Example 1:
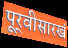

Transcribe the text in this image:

पूर्वीसारखं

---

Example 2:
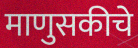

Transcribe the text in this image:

माणुसकीचे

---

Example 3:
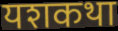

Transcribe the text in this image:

यशकथा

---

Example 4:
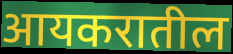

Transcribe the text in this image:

आयकरातील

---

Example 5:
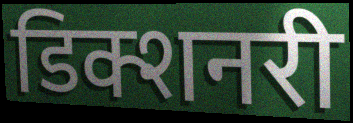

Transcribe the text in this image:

डिक्शनरी